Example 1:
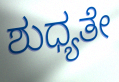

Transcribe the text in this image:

ಶುಧ್ಯತೇ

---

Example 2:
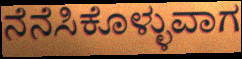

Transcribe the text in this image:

ನೆನೆಸಿಕೊಳ್ಳುವಾಗ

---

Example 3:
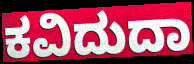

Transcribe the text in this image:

ಕವಿದುದಾ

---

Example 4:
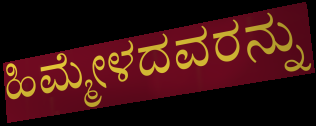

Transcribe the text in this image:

ಹಿಮ್ಮೇಳದವರನ್ನು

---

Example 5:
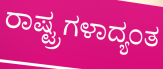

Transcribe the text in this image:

ರಾಷ್ಟ್ರಗಳಾದ್ಯಂತ